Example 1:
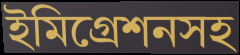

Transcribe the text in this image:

ইমিগ্রেশনসহ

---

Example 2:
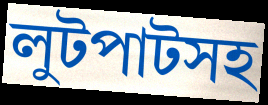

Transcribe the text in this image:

লুটপাটসহ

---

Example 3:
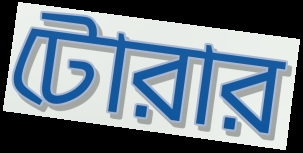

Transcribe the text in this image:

টোরার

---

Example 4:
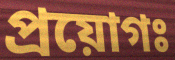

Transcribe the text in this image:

প্রয়োগঃ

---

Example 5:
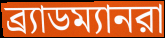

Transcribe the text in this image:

ব্র্যাডম্যানরা